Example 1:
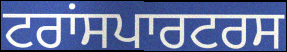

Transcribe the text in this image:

ਟਰਾਂਸਪਾਰਟਰਸ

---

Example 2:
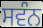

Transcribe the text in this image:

ਸਵੰਨ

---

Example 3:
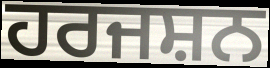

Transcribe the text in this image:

ਹਰਜਸ਼ਨ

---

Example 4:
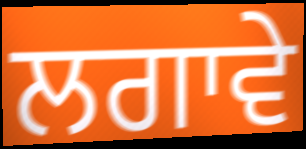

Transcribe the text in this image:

ਲਗਾਵੇ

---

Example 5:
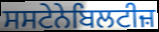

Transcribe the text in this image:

ਸਸਟੇਨੇਬਿਲਟੀਜ਼